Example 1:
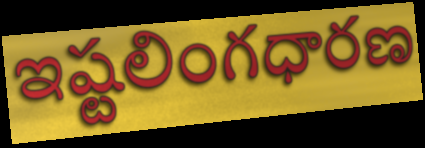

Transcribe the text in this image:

ఇష్టలింగధారణ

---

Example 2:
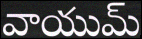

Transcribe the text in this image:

వాయుమ్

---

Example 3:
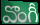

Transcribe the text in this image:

వొంగీ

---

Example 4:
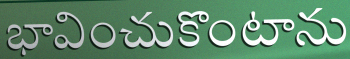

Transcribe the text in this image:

భావించుకొంటాను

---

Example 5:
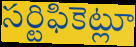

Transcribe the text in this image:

సర్టిఫికెట్లూ